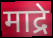
माद्रे